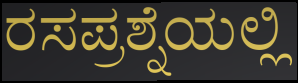
ರಸಪ್ರಶ್ನೆಯಲ್ಲಿ